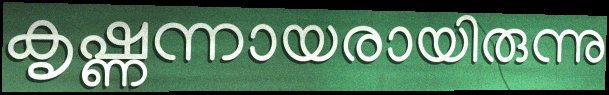
കൃഷ്ണന്നായരായിരുന്നു